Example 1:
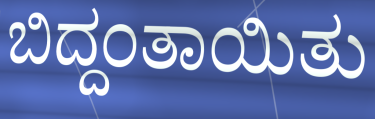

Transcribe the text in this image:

ಬಿದ್ದಂತಾಯಿತು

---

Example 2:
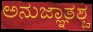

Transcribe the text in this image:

ಅನುಜ್ಞಾತಶ್ಚ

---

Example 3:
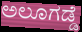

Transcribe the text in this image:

ಅಲೂಗಡ್ಡೆ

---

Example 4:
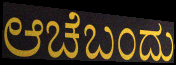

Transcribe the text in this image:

ಆಚೆಬಂದು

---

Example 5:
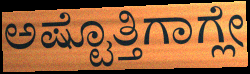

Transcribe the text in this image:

ಅಷ್ಟೊತ್ತಿಗಾಗ್ಲೇ